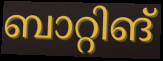
ബാറ്റിങ്